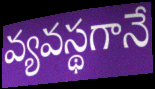
వ్యవస్థగానే